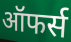
ऑफर्स